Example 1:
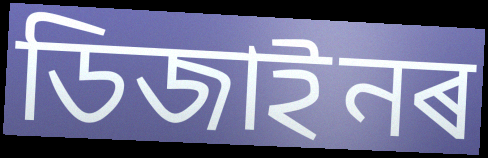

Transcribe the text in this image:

ডিজাইনৰ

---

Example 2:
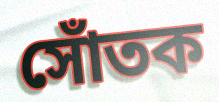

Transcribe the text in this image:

সোঁতক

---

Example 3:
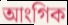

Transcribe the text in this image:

আংগিক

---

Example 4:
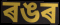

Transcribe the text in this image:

ৰঙৰ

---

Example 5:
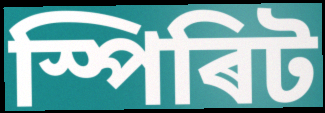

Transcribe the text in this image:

স্পিৰিট